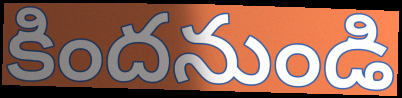
కిందనుండి